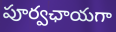
పూర్వఛాయగా